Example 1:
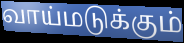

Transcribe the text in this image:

வாய்மடுக்கும்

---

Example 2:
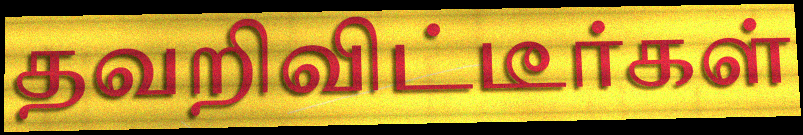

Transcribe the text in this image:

தவறிவிட்டீர்கள்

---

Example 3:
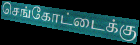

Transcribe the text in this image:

செங்கோட்டைக்கு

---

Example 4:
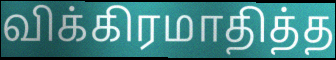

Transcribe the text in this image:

விக்கிரமாதித்த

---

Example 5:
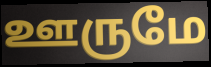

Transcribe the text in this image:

ஊருமே